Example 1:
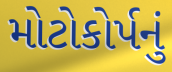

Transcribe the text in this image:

મોટોકોર્પનું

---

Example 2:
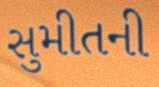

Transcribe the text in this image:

સુમીતની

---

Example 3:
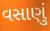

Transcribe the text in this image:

વસાણું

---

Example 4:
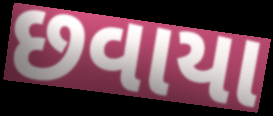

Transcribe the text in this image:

છવાયા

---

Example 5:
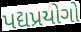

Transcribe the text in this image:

પદ્યપ્રયોગો